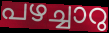
പഴച്ചാറു